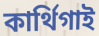
কার্থিগাই